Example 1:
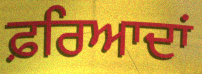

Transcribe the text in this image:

ਫ਼ਰਿਆਦਾਂ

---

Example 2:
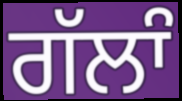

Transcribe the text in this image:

ਗੱਲਾੰ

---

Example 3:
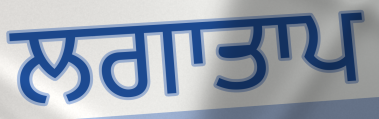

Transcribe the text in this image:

ਲਗਾਤਾਪ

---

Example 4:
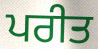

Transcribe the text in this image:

ਪਰੀਤ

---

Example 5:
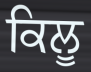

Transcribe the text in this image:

ਕਿਲੂ